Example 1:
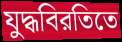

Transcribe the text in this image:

যুদ্ধবিরতিতে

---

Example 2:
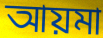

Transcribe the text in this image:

আয়মা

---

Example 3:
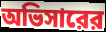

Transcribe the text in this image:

অভিসারের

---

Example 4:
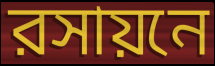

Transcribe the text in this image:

রসায়নে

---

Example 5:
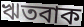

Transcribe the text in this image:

ঋতবাক